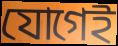
যোগেই